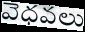
వెధవలు